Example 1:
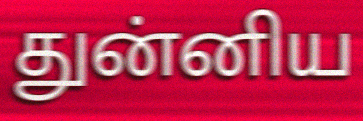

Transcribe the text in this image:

துன்னிய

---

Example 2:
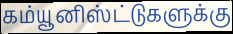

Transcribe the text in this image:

கம்யூனிஸ்ட்டுகளுக்கு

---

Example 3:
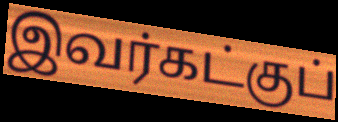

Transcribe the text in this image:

இவர்கட்குப்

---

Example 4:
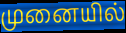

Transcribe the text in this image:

முனையில்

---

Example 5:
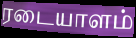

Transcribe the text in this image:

ரடையாளம்